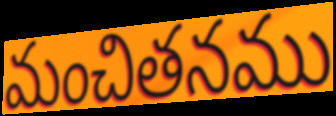
మంచితనము